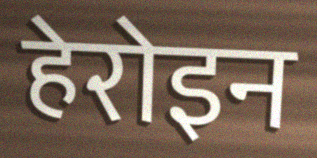
हेरोइन